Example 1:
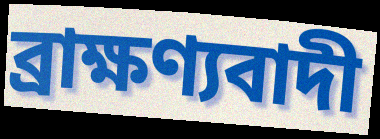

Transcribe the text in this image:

ব্রাক্ষণ্যবাদী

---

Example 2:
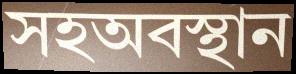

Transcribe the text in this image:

সহঅবস্থান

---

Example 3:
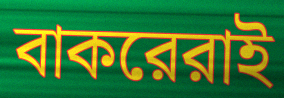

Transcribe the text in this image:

বাকরেরাই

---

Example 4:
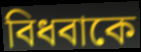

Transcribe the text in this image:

বিধবাকে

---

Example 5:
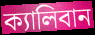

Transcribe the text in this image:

ক্যালিবান